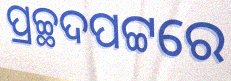
ପ୍ରଚ୍ଛଦପଟ୍ଟରେ